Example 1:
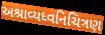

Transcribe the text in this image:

અશ્રાવ્યધ્વનિચિત્રણ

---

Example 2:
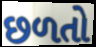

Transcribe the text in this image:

છળતો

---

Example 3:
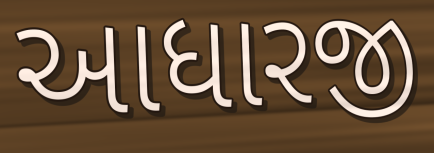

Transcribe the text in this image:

આધારજી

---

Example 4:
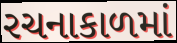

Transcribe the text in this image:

રચનાકાળમાં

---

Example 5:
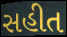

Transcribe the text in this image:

સહીત